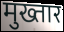
मुख्‍तार